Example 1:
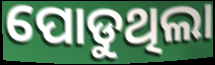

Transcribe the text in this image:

ପୋଡୁଥିଲା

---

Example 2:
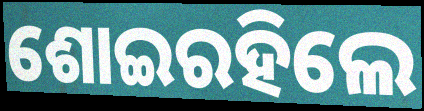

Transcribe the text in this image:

ଶୋଇରହିଲେ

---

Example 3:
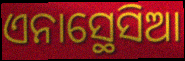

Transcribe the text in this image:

ଏନାସ୍ଥେସିଆ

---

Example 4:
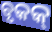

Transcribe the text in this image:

ବୃକକ୍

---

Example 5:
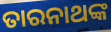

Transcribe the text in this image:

ତାରନାଥଙ୍କ